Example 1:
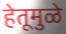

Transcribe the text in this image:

हेतूमुळे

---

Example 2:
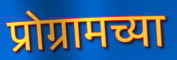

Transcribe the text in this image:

प्रोग्रामच्या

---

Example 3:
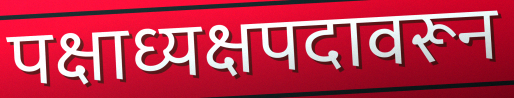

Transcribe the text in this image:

पक्षाध्यक्षपदावरून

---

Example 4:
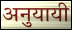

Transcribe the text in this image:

अनुयायी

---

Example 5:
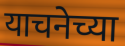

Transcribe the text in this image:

याचनेच्या